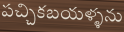
పచ్చికబయళ్ళను